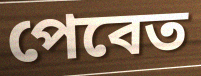
পেবেত